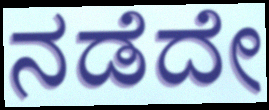
ನಡೆದೇ